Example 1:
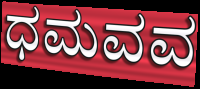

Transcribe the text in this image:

ಧಮವವ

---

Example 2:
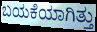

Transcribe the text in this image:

ಬಯಕೆಯಾಗಿತ್ತು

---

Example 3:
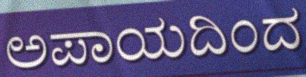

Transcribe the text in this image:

ಅಪಾಯದಿಂದ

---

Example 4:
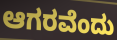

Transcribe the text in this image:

ಆಗರವೆಂದು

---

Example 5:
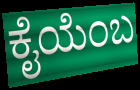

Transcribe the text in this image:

ಕೈಯೆಂಬ